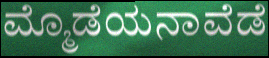
ಮ್ಮೊಡೆಯನಾವೆಡೆ